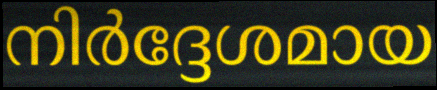
നിർദ്ദേശമായ